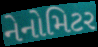
નેનોમિટર